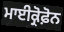
ਮਾਈਕ੍ਰੋਫ਼ੋਨ